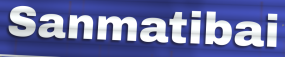
Sanmatibai